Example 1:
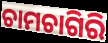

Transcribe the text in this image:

ଚାମଚାଗିରି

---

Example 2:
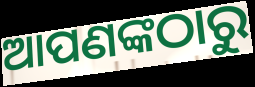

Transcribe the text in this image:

ଆପଣଙ୍କଠାରୁ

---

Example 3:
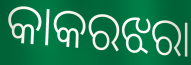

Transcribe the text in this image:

କାକରଝରା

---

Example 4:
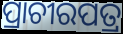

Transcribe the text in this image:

ପ୍ରାଚୀରପତ୍ର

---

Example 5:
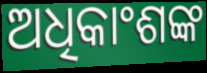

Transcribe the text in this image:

ଅଧିକାଂଶଙ୍କ